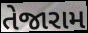
તેજારામ